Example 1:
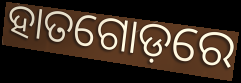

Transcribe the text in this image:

ହାତଗୋଡ଼ରେ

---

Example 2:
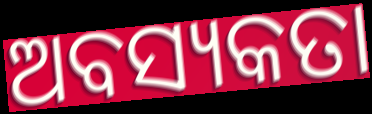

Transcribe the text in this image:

ଅବସ୍ୟକତା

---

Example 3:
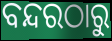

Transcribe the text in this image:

ବନ୍ଦରଠାରୁ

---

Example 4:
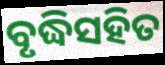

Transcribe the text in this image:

ବୃଦ୍ଧିସହିତ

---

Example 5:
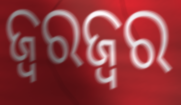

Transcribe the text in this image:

ଜ୍ୱରଜ୍ୱର